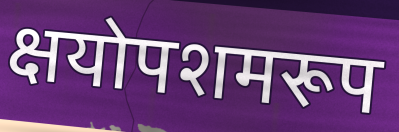
क्षयोपशमरूप